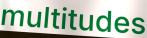
multitudes